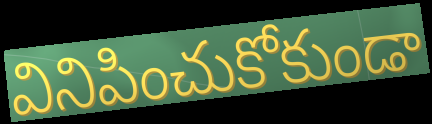
వినిపించుకోకుండా